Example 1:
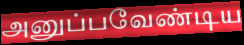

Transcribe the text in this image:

அனுப்பவேண்டிய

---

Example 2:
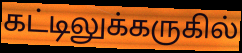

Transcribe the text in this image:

கட்டிலுக்கருகில்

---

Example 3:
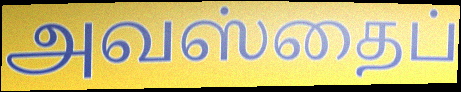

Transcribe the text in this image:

அவஸ்தைப்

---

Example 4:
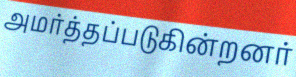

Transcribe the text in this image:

அமர்த்தப்படுகின்றனர்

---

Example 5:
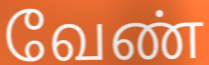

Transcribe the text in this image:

வேண்